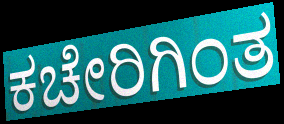
ಕಚೇರಿಗಿಂತ